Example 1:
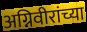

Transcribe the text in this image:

अग्निवीरांच्या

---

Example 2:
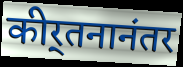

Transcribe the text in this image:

कीर्तनानंतर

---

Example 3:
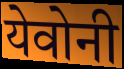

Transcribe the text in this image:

येवोनी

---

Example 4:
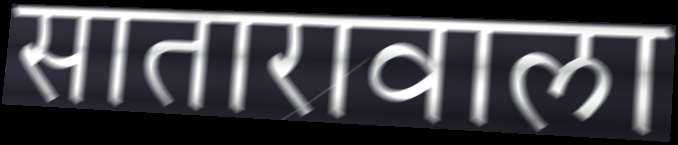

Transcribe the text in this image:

सातारावाला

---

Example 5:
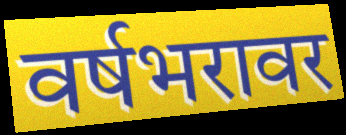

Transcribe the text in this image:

वर्षभरावर